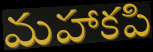
మహాకపి